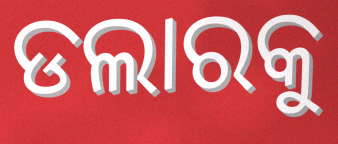
ଡଲାରକୁ